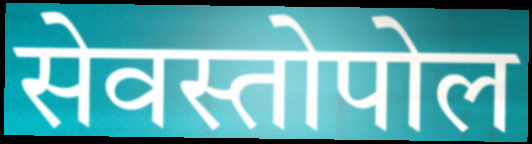
सेवस्तोपोल